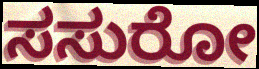
ಸಸುರೋ